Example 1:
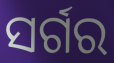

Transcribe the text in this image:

ସର୍ଗର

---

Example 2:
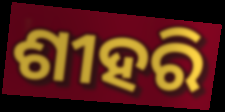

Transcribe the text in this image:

ଶୀହରି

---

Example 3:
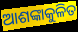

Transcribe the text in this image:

ଆଶଙ୍କାକୁଳିତ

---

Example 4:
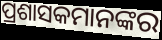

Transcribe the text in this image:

ପ୍ରଶାସକମାନଙ୍କର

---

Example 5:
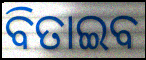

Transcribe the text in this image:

ବିତାଇବ